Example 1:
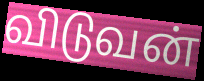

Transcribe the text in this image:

விடுவன்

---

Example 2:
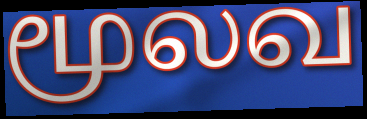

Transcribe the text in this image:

மூலவ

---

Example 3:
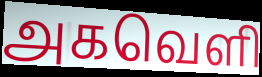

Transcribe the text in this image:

அகவெளி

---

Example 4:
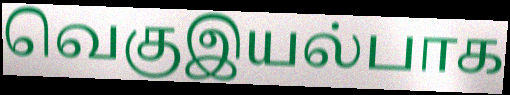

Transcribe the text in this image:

வெகுஇயல்பாக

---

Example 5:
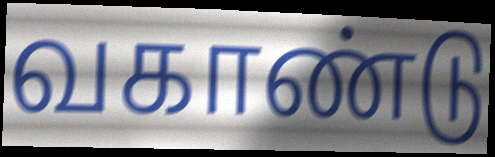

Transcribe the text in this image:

வகாண்டு